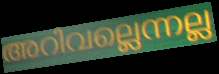
അറിവല്ലെന്നല്ല